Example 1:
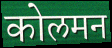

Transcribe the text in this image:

कोलमन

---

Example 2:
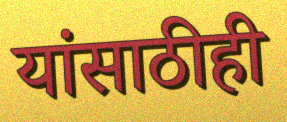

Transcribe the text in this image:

यांसाठीही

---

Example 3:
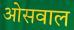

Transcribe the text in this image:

ओसवाल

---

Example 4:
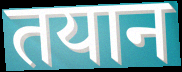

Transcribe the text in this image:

तयान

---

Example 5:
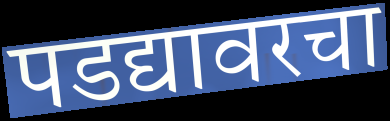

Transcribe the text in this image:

पडद्यावरचा